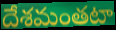
దేశమంతటా